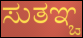
ಸುತಞ್ಚ